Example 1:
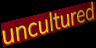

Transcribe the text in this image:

uncultured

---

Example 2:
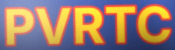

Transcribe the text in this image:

PVRTC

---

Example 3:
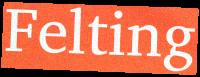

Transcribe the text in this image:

Felting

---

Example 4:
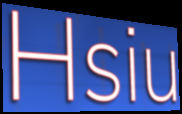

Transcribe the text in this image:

Hsiu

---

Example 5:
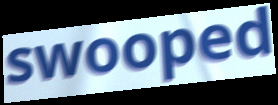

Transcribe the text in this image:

swooped